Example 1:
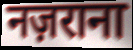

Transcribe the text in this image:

नज़राना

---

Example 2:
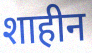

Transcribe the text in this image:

शाहीन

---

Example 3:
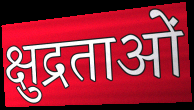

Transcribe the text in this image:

क्षुद्रताओं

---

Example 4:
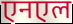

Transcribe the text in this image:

एनएल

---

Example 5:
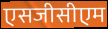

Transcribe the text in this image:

एसजीसीएम